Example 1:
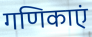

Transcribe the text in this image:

गणिकाएं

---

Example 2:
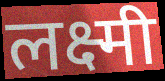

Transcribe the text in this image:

लक्ष्मी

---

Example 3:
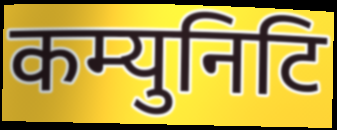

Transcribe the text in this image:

कम्युनिटि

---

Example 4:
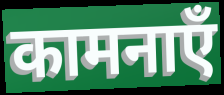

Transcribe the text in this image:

कामनाएँ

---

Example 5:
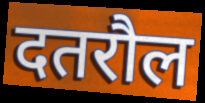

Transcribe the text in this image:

दतरौल